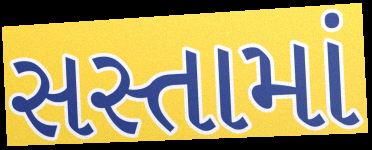
સસ્તામાં